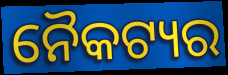
ନୈକଟ୍ୟର